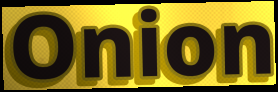
Onion